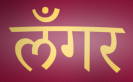
लँगर